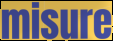
misure